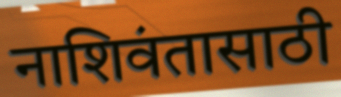
नाशिवंतासाठी